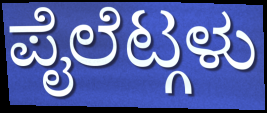
ಪೈಲೆಟ್ಗಳು